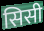
सिसी